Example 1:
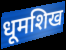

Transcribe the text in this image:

धूमशिख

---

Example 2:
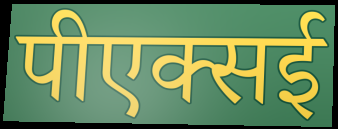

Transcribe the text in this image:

पीएक्सई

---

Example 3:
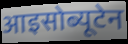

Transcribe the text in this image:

आइसोब्यूटेन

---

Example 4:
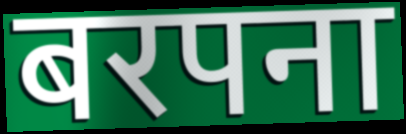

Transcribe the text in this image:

बरपना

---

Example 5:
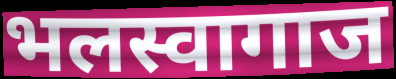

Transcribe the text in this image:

भलस्वागाज